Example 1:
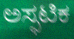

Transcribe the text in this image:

ಅಸ್ಫಟಿಕ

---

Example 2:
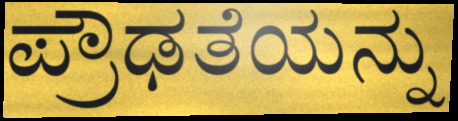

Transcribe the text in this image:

ಪ್ರೌಢತೆಯನ್ನು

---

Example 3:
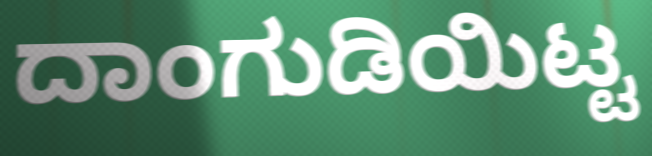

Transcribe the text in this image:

ದಾಂಗುಡಿಯಿಟ್ಟ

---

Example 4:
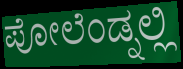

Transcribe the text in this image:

ಪೋಲೆಂಡ್ನಲ್ಲಿ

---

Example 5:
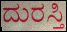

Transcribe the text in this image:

ದುರಸ್ತಿ